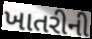
ખાતરીની